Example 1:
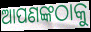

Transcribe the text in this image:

ଆପଣଙ୍କଠାକୁ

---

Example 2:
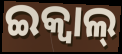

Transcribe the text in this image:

ଇକ୍ୱାଲ୍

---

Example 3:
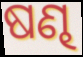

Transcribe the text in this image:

ଷଣ୍ଢ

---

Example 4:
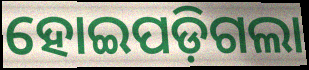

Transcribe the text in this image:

ହୋଇପଡ଼ିଗଲା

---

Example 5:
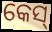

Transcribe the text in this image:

କେସ୍